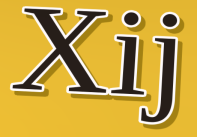
Xij